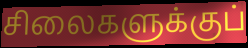
சிலைகளுக்குப்